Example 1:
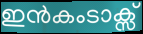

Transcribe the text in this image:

ഇൻകംടാക്സ്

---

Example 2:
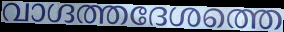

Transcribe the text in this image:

വാഗ്ദത്തദേശത്തെ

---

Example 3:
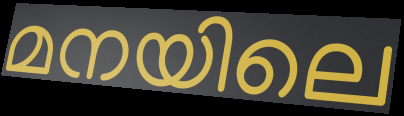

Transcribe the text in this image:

മനയിലെ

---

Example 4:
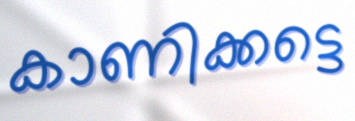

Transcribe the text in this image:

കാണിക്കട്ടെ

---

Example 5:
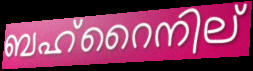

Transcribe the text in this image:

ബഹ്റൈനില്